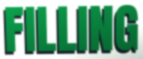
FILLING